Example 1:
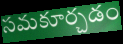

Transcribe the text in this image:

సమకూర్చడం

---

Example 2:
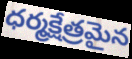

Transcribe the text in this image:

ధర్మక్షేత్రమైన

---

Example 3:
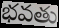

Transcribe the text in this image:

భవతు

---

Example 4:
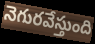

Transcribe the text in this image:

నెగురవేస్తుంది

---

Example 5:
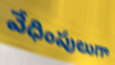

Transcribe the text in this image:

వేధింపులుగా